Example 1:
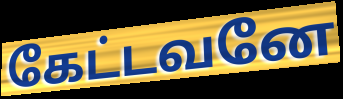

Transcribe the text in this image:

கேட்டவனே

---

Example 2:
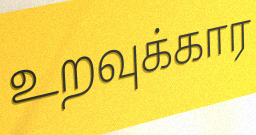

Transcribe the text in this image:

உறவுக்கார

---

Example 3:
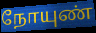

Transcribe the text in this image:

நோயுண்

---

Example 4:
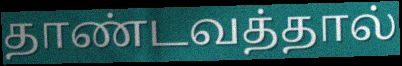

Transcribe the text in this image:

தாண்டவத்தால்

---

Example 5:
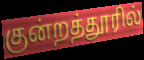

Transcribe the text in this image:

குன்றத்தூரில்